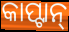
କାପ୍ଟାନ୍